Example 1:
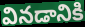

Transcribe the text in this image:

వినడానికి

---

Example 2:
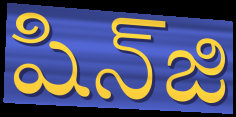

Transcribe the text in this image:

షిన్‌జి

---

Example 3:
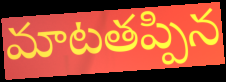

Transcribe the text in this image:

మాటతప్పిన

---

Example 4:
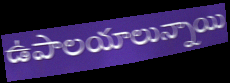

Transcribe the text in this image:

ఉపాలయాలున్నాయి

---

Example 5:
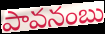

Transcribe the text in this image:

పావనంబు